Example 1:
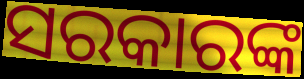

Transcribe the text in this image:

ସରକାରଙ୍କ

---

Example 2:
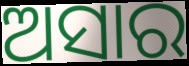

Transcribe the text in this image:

ଅସାର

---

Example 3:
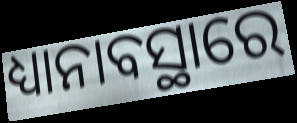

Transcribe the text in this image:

ଧ୍ୟାନାବସ୍ଥାରେ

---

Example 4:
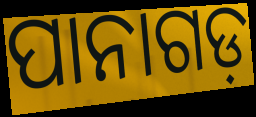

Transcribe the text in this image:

ପାନାଗଡ଼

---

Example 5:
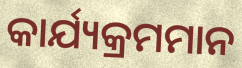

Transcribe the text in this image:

କାର୍ଯ୍ୟକ୍ରମମାନ